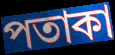
পতাকা